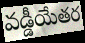
వడ్డీయేతర